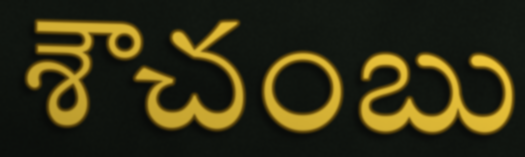
శౌచంబు